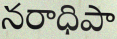
నరాధిపా